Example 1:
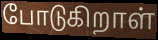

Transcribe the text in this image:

போடுகிறாள்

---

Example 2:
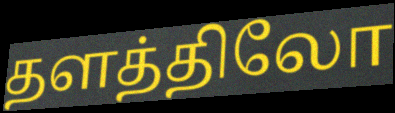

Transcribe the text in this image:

தளத்திலோ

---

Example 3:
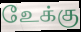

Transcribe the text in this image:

உேக்கு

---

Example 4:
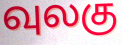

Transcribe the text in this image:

வுலகு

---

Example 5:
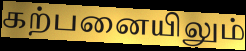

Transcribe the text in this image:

கற்பனையிலும்